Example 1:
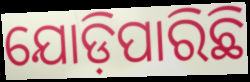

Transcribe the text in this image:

ଯୋଡ଼ିପାରିଛି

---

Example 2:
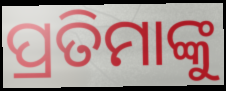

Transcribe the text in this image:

ପ୍ରତିମାଙ୍କୁ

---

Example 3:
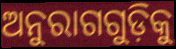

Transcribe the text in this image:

ଅନୁରାଗଗୁଡ଼ିକୁ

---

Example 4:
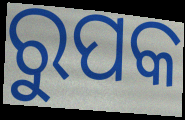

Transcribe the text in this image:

ରୁପକ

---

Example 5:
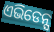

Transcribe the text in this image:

ଏଭିଡେନ୍ସ